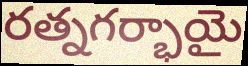
రత్నగర్భాయై